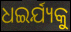
ଧଇର୍ଯ୍ୟକୁ